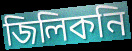
জিলিকনি